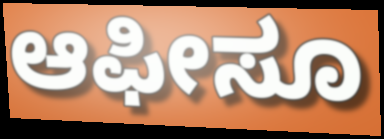
ಆಫೀಸೂ